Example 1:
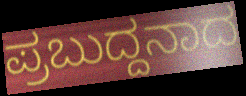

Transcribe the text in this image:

ಪ್ರಬುದ್ದನಾದ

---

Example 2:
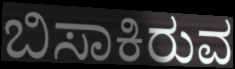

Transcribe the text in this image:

ಬಿಸಾಕಿರುವ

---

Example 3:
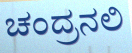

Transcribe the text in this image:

ಚಂದ್ರನಲಿ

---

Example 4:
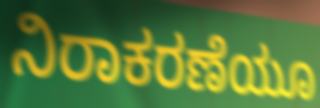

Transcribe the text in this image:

ನಿರಾಕರಣೆಯೂ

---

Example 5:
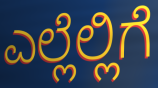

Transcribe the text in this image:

ಎಲ್ಲೆಲ್ಲಿಗೆ